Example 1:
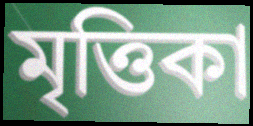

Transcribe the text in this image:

মৃত্তিকা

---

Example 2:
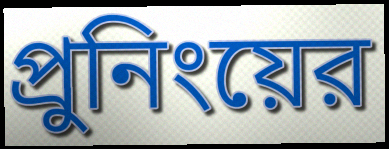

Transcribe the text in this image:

প্রুনিংয়ের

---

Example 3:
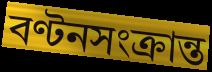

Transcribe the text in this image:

বণ্টনসংক্রান্ত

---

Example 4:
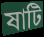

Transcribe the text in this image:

ষাটি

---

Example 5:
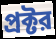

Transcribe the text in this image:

প্রক্টর